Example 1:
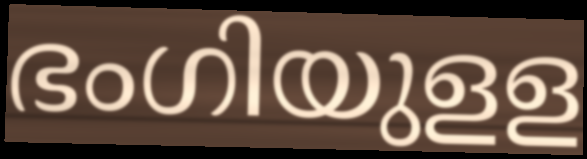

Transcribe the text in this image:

ഭംഗിയുളള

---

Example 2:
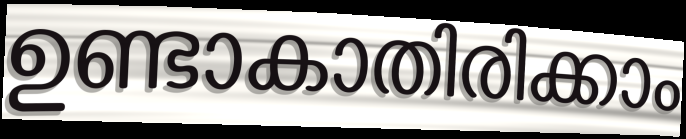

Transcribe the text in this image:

ഉണ്ടാകാതിരിക്കാം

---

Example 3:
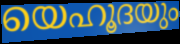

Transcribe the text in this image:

യെഹൂദയും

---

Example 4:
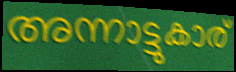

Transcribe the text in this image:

അന്നാട്ടുകാര്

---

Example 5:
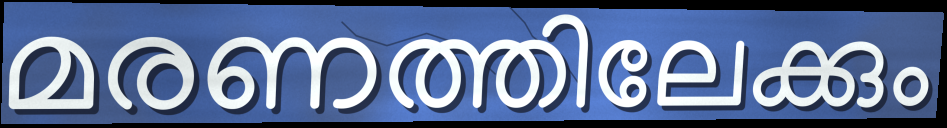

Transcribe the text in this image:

മരണത്തിലേക്കും